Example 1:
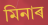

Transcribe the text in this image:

মিনাৰ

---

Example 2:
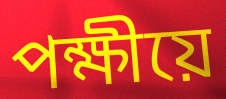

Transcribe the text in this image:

পক্ষীয়ে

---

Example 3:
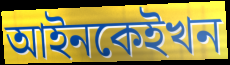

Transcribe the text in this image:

আইনকেইখন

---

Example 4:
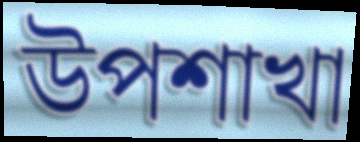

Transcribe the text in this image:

উপশাখা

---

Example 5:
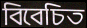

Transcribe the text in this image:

বিবেচিত